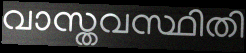
വാസ്തവസ്ഥിതി